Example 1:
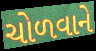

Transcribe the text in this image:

ચોળવાને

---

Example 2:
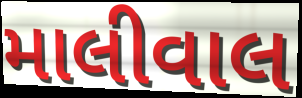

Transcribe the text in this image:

માલીવાલ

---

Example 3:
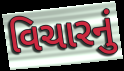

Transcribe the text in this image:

વિચારનું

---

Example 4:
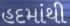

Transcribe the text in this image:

હદમાંથી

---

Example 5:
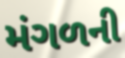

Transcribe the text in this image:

મંગળની